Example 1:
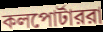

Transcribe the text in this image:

কলপোর্টাররা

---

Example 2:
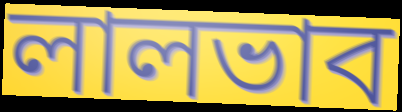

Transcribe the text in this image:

লালভাব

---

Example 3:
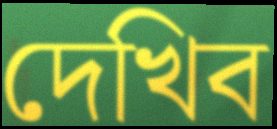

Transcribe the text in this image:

দেখিব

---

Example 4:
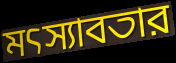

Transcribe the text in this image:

মৎস্যাবতার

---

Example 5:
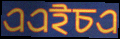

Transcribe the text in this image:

এএইচএ